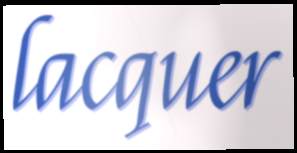
lacquer